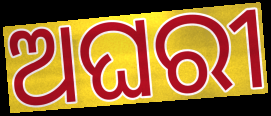
ଅଘରୀ